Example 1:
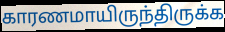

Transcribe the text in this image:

காரணமாயிருந்திருக்க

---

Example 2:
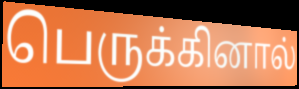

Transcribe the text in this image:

பெருக்கினால்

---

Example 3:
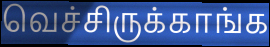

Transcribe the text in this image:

வெச்சிருக்காங்க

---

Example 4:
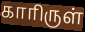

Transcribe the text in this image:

காரிருள்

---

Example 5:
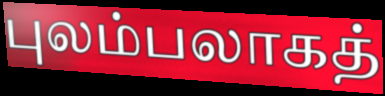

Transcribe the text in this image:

புலம்பலாகத்